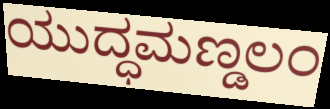
ಯುದ್ಧಮಣ್ಡಲಂ